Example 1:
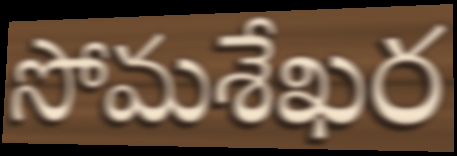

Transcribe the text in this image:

సోమశేఖర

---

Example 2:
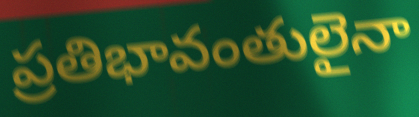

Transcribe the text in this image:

ప్రతిభావంతులైనా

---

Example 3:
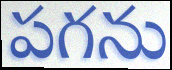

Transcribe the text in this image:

పగను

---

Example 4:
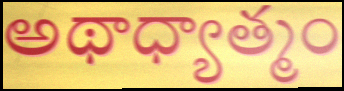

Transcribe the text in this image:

అథాధ్యాత్మం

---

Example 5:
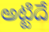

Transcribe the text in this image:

అట్టిదే